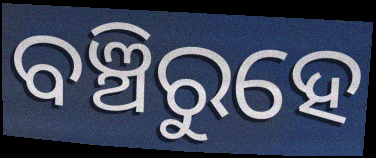
ବଞ୍ଚିରୁହେ